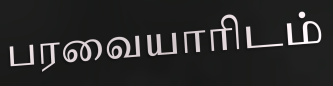
பரவையாரிடம்